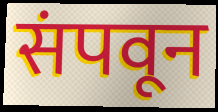
संपवून